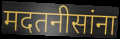
मदतनीसांना